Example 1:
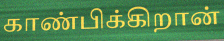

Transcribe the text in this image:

காண்பிக்கிறான்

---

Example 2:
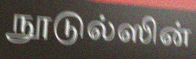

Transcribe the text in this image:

நூடுல்ஸின்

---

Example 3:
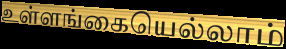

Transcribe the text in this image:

உள்ளங்கையெல்லாம்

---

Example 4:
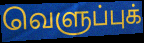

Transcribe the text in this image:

வெளுப்புக்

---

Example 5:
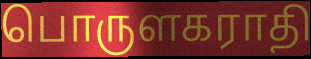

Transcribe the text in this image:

பொருளகராதி